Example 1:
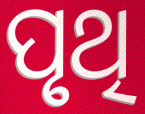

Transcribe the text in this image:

ପୃଥି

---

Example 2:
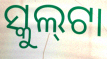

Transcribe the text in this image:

ସ୍କୁଲ୍‍ଟା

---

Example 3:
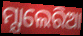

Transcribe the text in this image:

ମ୍ଯାଲେରିଆ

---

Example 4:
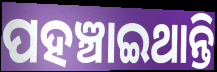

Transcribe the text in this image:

ପହଞ୍ଚାଇଥାନ୍ତି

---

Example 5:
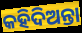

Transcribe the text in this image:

କହିଦିଅନ୍ତା